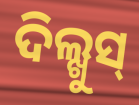
ଦିଲ୍ଖୁସ୍